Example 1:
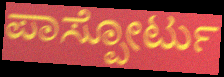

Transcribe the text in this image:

ಪಾಸ್ಪೋರ್ಟು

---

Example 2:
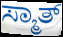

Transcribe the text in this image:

ಸ್ಮಾತ್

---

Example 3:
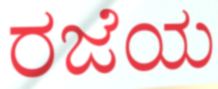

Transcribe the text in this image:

ರಜೆಯ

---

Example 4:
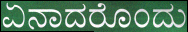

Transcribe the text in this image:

ಏನಾದರೊಂದು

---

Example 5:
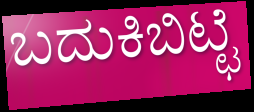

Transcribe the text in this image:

ಬದುಕಿಬಿಟ್ಟೆ